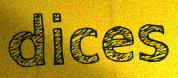
dices